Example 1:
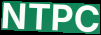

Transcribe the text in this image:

NTPC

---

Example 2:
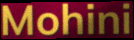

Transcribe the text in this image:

Mohini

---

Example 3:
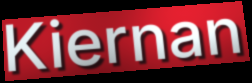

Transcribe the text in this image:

Kiernan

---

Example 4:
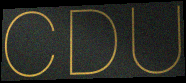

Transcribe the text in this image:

CDU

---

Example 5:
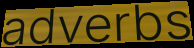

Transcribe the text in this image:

adverbs